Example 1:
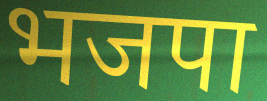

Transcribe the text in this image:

भजपा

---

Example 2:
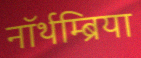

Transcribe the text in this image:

नॉर्थम्ब्रिया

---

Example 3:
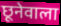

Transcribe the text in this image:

छूनेवाला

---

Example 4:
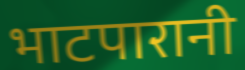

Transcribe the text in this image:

भाटपारानी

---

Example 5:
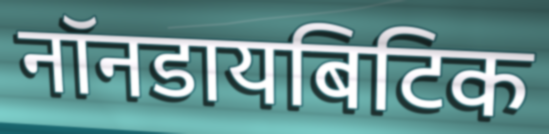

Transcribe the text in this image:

नॉनडायबिटिक